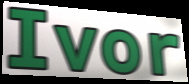
Ivor